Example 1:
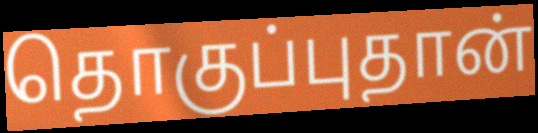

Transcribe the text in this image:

தொகுப்புதான்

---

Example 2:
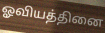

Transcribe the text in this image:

ஓவியத்தினை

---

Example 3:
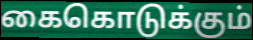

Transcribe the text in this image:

கைகொடுக்கும்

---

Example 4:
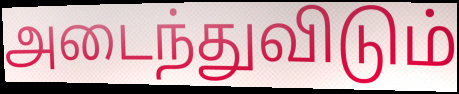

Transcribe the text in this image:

அடைந்துவிடும்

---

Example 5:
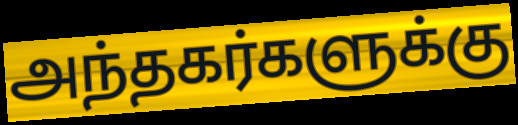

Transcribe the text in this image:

அந்தகர்களுக்கு